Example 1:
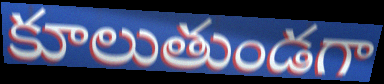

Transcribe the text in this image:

కూలుతుండగా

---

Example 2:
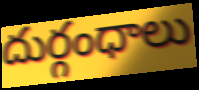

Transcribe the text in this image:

దుర్గంధాలు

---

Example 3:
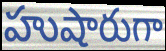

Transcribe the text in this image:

హుషారుగా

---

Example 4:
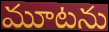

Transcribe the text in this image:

మూటను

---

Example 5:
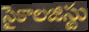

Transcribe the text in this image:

సైకాలజిస్టు